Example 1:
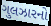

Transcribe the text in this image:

ગુલઝારનો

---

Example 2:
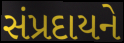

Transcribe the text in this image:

સંપ્રદાયને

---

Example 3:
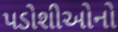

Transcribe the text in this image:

પડોશીઓનો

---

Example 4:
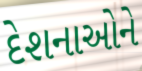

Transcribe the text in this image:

દેશનાઓને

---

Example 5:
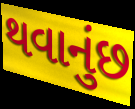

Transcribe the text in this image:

થવાનુંછ